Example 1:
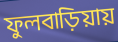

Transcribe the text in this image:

ফুলবাড়িয়ায়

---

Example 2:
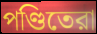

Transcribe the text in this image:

পণ্ডিতেরা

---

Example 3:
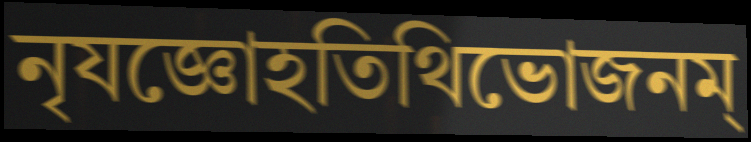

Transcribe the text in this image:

নৃযজ্ঞোহতিথিভোজনম্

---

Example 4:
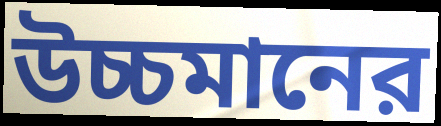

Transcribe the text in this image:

উচ্চমানের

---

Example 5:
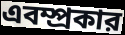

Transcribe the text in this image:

এবম্প্রকার